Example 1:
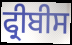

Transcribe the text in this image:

ਫ੍ਰੀਬੀਸ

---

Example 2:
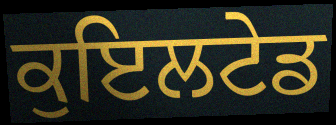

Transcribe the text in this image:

ਕੁਇਲਟੇਡ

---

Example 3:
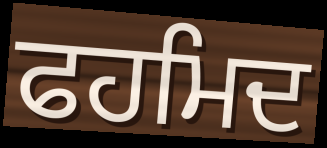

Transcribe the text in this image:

ਫਹਮਿਦ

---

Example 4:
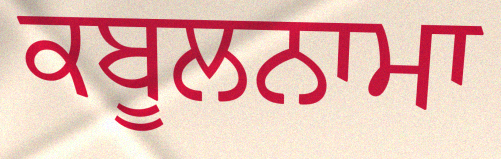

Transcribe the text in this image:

ਕਬੂਲਨਾਮਾ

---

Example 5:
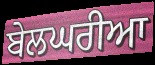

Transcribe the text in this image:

ਬੇਲਘਰੀਆ